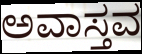
ಅವಾಸ್ತವ